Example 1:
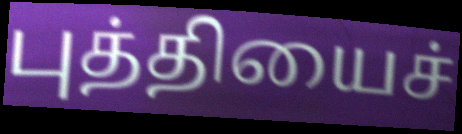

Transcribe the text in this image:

புத்தியைச்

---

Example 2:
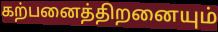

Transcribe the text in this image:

கற்பனைத்திறனையும்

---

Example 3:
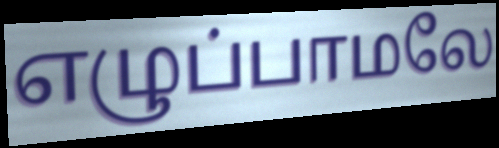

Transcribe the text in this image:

எழுப்பாமலே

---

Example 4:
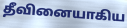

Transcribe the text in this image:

தீவினையாகிய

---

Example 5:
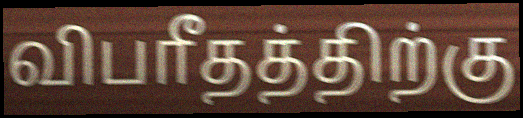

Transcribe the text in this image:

விபரீதத்திற்கு